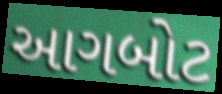
આગબોટ